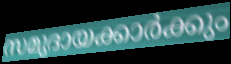
സമുദായക്കാർക്കും